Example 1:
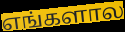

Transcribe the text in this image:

எங்களால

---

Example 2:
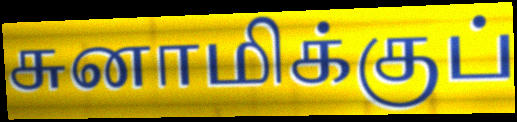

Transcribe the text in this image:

சுனாமிக்குப்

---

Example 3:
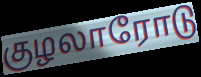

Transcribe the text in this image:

குழலாரோடு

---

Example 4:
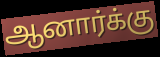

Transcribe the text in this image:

ஆனார்க்கு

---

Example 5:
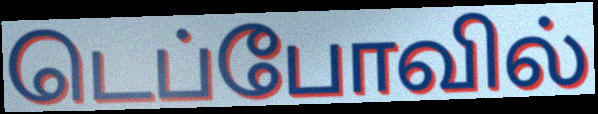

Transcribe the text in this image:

டெப்போவில்